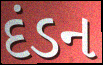
દંડન